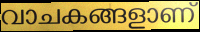
വാചകങ്ങളാണ്